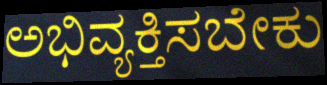
ಅಭಿವ್ಯಕ್ತಿಸಬೇಕು